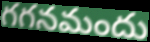
గగనమందు